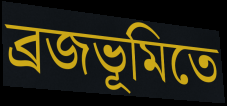
ব্রজভূমিতে